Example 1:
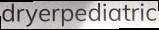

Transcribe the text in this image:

dryerpediatric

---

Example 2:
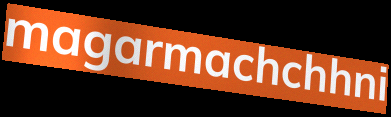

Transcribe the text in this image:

magarmachchhni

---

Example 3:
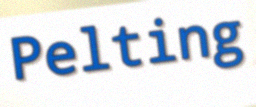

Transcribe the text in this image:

Pelting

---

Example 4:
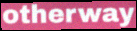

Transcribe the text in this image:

otherway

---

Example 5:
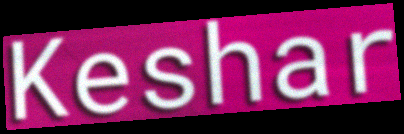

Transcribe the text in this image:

Keshar